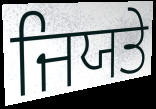
ਜਿਯਤੇ